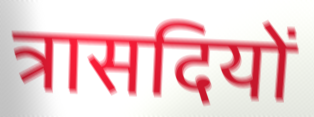
त्रासदियों